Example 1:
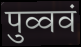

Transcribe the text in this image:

पुव्ववं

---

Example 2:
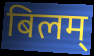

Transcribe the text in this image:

बिलम्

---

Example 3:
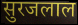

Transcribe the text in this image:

सुरजलाल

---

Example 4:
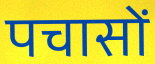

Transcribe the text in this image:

पचासों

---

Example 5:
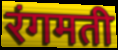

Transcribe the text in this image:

रंगमती